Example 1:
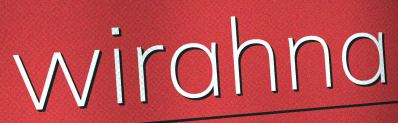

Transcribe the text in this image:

wirahna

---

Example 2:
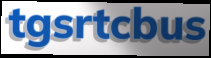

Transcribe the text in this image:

tgsrtcbus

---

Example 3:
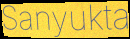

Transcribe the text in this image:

Sanyukta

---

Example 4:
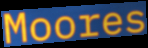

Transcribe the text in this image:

Moores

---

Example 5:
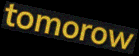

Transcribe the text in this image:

tomorow